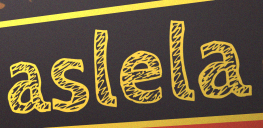
aslela